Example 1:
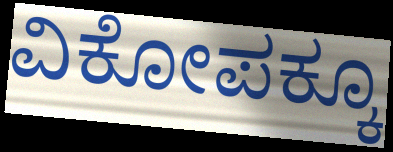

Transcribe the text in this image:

ವಿಕೋಪಕ್ಕೂ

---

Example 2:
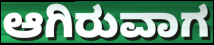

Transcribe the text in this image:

ಆಗಿರುವಾಗ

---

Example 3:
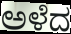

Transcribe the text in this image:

ಅಳೆದ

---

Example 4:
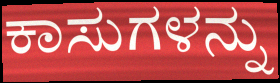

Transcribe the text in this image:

ಕಾಸುಗಳನ್ನು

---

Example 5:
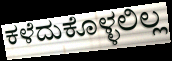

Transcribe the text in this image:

ಕಳೆದುಕೊಳ್ಳಲಿಲ್ಲ